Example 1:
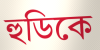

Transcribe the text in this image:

হুডিকে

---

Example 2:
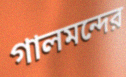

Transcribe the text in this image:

গালমন্দের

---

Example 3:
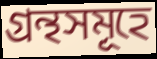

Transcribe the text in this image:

গ্রন্থসমূহে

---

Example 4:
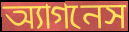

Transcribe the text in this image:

অ্যাগনেস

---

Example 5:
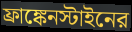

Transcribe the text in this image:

ফ্রাঙ্কেনস্টাইনের